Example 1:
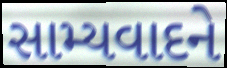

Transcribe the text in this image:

સામ્યવાદને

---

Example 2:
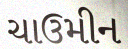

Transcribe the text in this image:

ચાઉમીન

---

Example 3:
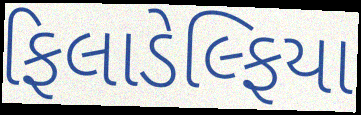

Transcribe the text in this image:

ફિલાડેલ્ફિયા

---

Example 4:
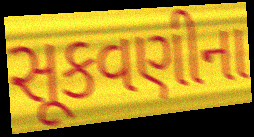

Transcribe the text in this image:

સૂકવણીના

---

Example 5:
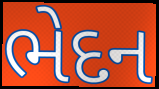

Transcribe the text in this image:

ભેદન